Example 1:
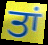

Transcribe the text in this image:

ਤਾਂ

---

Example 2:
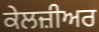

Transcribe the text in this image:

ਕੇਲਜ਼ੀਅਰ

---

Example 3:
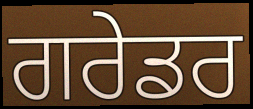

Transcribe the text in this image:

ਗਰੇਡਰ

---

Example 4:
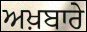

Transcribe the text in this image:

ਅਖ਼ਬਾਰੇ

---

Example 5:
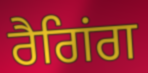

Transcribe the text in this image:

ਰੈਗਿਂਗ